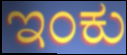
ಇಂಕು